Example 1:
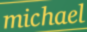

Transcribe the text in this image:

michael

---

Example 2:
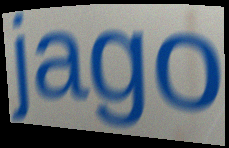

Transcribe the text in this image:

jago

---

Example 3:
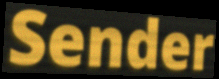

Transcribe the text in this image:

Sender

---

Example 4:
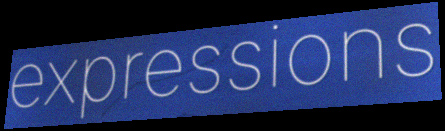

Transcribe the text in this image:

expressions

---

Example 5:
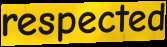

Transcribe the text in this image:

respected